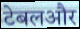
टेबलऔर